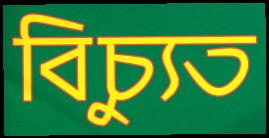
বিচ্যুত